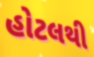
હોટલથી